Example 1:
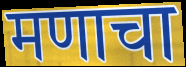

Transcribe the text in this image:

मणाचा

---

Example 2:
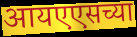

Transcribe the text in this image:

आयएएसच्या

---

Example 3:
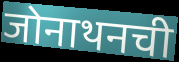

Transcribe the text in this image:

जोनाथनची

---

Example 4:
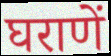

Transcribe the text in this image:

घराणें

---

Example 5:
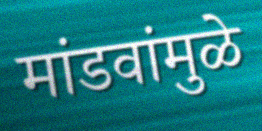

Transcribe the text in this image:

मांडवांमुळे